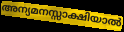
അന്യമനസ്സാക്ഷിയാൽ